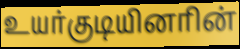
உயர்குடியினரின்